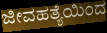
ಜೀವಹತ್ಯೆಯಿಂದ